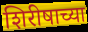
शिरीषाच्या